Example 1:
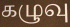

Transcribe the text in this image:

கழுவு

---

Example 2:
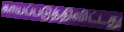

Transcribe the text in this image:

காயப்படுத்திவிட்டது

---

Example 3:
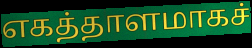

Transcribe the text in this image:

எகத்தாளமாகச்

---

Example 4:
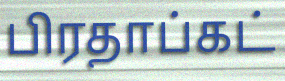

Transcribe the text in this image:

பிரதாப்கட்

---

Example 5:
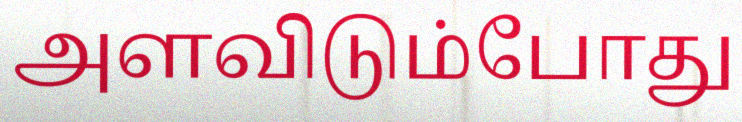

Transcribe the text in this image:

அளவிடும்போது